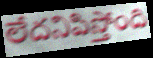
లేదనిపిస్తోంది